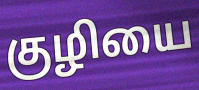
குழியை